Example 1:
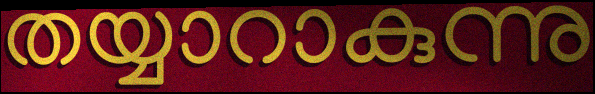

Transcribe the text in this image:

തയ്യാറാകുന്നു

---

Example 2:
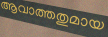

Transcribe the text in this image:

ആവാത്തതുമായ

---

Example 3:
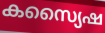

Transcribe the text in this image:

കസ്യൈഷ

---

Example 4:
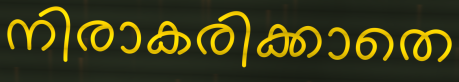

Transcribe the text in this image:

നിരാകരിക്കാതെ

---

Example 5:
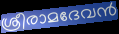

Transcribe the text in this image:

ശ്രീരാമദേവൻ